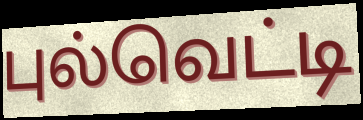
புல்வெட்டி